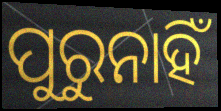
ପୁରୁନାହିଁ